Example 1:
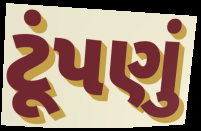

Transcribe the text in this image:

ટૂંપણું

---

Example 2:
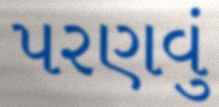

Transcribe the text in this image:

પરણવું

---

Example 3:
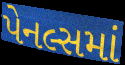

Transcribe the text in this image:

પેનલ્સમાં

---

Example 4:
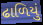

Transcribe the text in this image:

ઢાળિયું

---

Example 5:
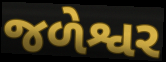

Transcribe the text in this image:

જળેશ્વર